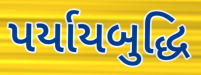
પર્યાયબુદ્ધિ